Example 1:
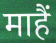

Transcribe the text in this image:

माहैं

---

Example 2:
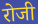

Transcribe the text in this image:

रोजी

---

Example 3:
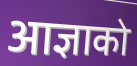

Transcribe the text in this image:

आज्ञाको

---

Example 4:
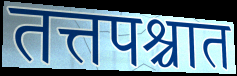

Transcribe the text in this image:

तत्तपश्चात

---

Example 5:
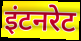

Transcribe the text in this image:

इंटनरेट